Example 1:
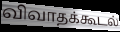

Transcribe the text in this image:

விவாதக்கூடல்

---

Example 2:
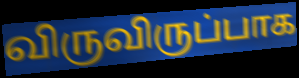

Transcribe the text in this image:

விருவிருப்பாக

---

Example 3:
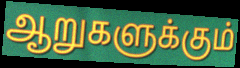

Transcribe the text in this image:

ஆறுகளுக்கும்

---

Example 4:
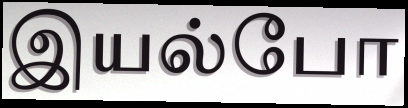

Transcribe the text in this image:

இயல்போ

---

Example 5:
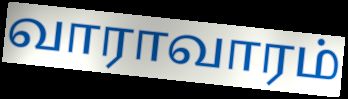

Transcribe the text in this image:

வாராவாரம்